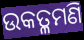
ଉକତ୍ଳମଣି